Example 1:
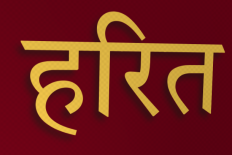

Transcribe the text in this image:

हरित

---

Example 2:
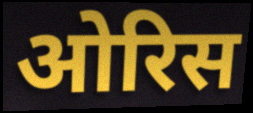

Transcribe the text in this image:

ओरिस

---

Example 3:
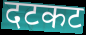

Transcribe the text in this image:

दटकट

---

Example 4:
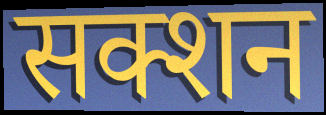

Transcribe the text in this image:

सक्शन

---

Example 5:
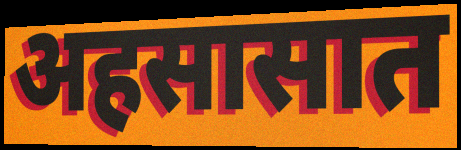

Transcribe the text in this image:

अहसासात